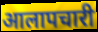
आलापचारी